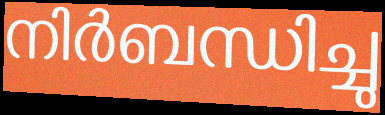
നിർബന്ധിച്ചു